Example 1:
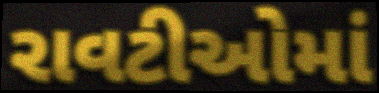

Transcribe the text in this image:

રાવટીઓમાં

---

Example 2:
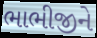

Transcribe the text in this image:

ભાભીજીને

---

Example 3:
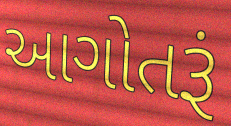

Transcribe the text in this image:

આગોતરૂં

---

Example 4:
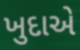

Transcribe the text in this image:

ખુદાએ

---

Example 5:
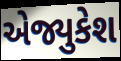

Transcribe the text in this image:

એજ્યુકેશ